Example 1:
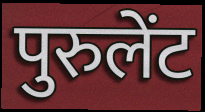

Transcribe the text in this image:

पुरुलेंट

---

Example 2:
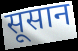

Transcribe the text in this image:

सूसान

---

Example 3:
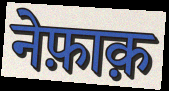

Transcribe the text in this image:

नेफ़ाक़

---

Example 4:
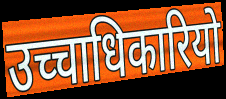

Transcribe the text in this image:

उच्चाधिकारियो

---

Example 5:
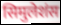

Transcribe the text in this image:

सिमुलेशंस